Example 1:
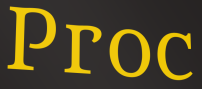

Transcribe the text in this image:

Proc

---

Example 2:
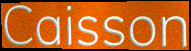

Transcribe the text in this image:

Caisson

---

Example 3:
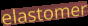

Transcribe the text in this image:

elastomer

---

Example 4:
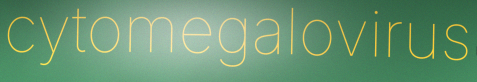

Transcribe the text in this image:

cytomegalovirus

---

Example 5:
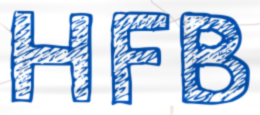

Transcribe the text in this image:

HFB